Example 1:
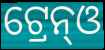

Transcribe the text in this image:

ଟ୍ରେନ୍ଓ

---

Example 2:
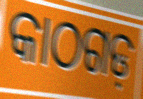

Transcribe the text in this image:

କାଠଗଡ଼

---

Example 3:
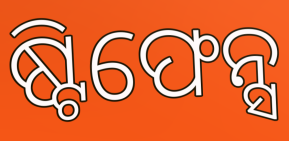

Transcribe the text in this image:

ଷ୍ଟିଫେନ୍ସ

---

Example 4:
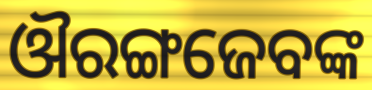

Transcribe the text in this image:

ଔରଙ୍ଗଜେବଙ୍କ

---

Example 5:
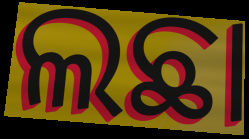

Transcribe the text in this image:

ଲଛା